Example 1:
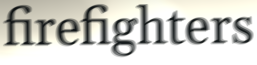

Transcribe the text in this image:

firefighters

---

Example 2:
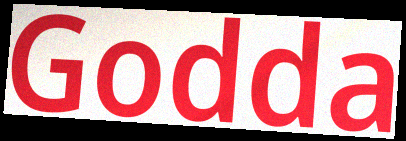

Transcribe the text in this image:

Godda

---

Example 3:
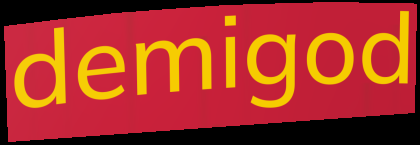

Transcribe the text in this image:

demigod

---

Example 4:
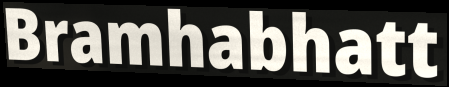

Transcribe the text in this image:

Bramhabhatt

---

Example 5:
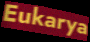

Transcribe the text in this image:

Eukarya